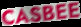
CASBEE